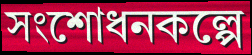
সংশোধনকল্পে